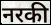
नरकी